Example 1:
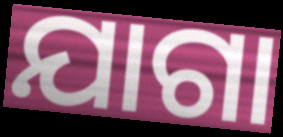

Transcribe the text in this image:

ଯାଗା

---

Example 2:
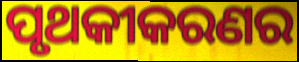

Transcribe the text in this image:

ପୃଥକୀକରଣର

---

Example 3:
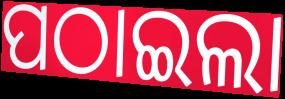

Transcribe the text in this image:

ପଠାଇଲା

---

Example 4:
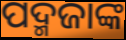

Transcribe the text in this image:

ପଦ୍ମଜାଙ୍କ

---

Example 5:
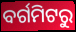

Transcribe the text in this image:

ବର୍ଗମିଟରୁ